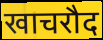
खाचरौद